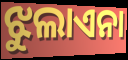
ଝୁଲାଏନା